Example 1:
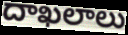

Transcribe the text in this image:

దాఖలాలు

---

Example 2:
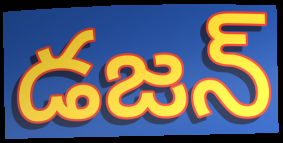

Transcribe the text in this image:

డజన్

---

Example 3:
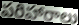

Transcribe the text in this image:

పరిహారాలు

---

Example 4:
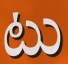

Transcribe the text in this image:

టు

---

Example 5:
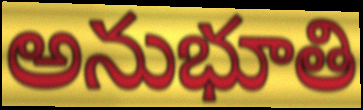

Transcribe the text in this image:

అనుభూతి